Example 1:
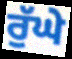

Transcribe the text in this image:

ਰੁੱਘੇ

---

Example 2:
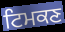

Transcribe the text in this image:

ਟਿਮਕਣ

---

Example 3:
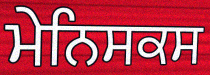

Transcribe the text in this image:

ਮੇਨਿਸਕਸ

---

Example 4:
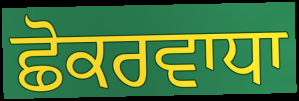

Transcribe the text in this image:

ਛੋਕਰਵਾਧਾ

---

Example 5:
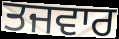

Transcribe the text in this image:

ਤਜਵਾਰ